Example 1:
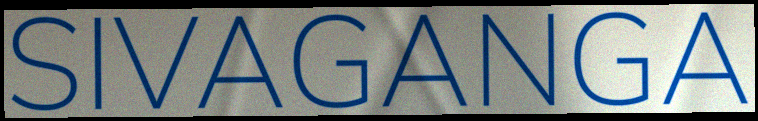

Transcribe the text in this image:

SIVAGANGA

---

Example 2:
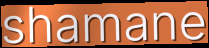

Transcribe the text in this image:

shamane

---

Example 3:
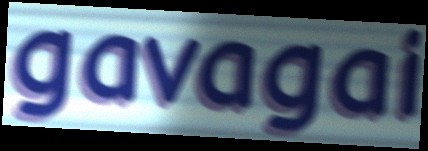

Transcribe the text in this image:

gavagai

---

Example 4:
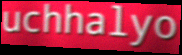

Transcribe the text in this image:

uchhalyo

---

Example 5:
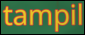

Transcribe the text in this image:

tampil